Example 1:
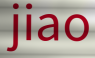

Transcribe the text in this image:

jiao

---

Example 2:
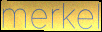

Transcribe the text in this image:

merkel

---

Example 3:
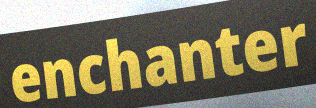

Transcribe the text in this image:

enchanter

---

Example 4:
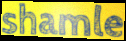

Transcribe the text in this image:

shamle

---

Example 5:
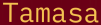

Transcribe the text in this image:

Tamasa